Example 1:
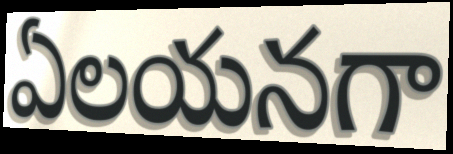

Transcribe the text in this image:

ఏలయనగా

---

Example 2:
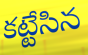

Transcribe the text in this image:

కట్టేసిన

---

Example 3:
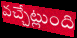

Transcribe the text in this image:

వచ్చేట్లుంది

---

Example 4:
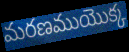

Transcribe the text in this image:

మరణముయొక్క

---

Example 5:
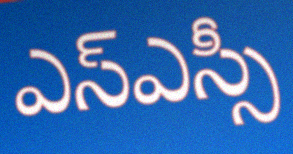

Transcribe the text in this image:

ఎస్ఎస్సీ